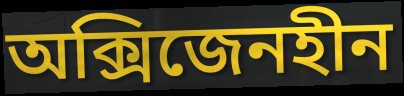
অক্সিজেনহীন